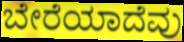
ಬೇರೆಯಾದೆವು